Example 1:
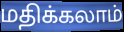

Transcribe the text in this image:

மதிக்கலாம்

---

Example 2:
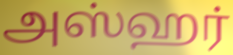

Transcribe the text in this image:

அஸ்ஹர்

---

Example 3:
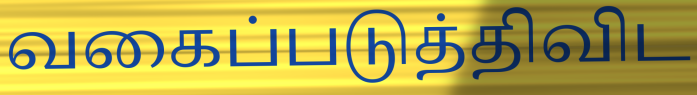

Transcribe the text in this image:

வகைப்படுத்திவிட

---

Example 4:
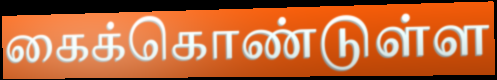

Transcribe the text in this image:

கைக்கொண்டுள்ள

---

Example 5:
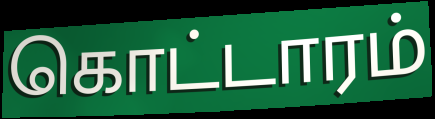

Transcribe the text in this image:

கொட்டாரம்